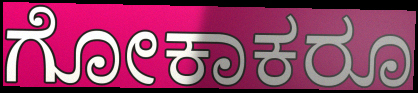
ಗೋಕಾಕರೂ